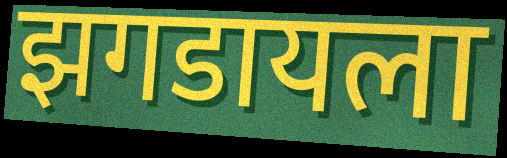
झगडायला